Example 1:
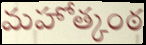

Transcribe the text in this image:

మహోత్కంఠ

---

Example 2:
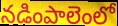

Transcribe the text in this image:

నడింపాలెంలో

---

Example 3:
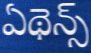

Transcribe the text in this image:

ఏథెన్స్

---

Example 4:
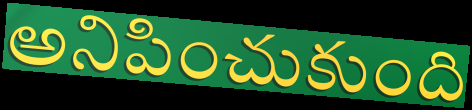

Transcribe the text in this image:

అనిపించుకుంది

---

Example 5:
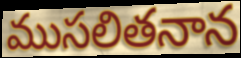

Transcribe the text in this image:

ముసలితనాన